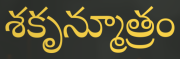
శకృన్మూత్రం